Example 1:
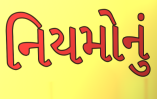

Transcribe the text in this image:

નિયમોનું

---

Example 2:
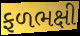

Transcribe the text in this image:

ફળભક્ષી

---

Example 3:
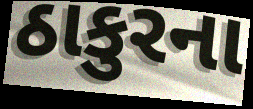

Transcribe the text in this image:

ઠાકુરના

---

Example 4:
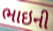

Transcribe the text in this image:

ભાઇની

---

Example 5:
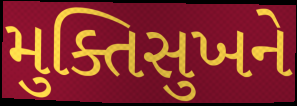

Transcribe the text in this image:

મુક્તિસુખને